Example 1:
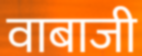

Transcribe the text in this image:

वाबाजी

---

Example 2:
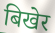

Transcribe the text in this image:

बिखेर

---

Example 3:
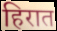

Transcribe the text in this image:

हिरात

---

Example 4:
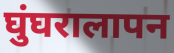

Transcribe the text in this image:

घुंघरालापन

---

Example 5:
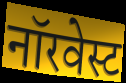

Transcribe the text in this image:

नॉरवेस्ट